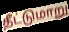
தீட்டுமாறு